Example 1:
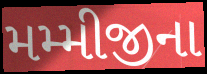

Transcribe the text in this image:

મમ્મીજીના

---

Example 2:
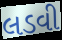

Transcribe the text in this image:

લડવી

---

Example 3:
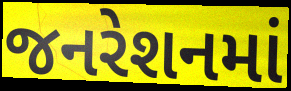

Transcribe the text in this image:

જનરેશનમાં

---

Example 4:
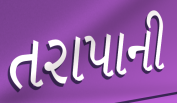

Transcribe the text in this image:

તરાપાની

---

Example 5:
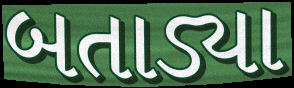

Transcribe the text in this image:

બતાડ્યા